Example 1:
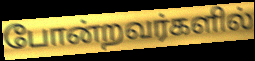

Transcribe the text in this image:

போன்றவர்களில்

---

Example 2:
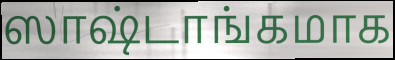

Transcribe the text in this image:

ஸாஷ்டாங்கமாக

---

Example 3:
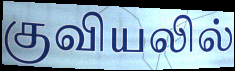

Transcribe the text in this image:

குவியலில்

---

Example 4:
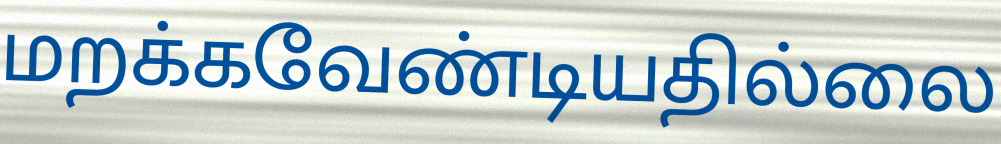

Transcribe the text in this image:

மறக்கவேண்டியதில்லை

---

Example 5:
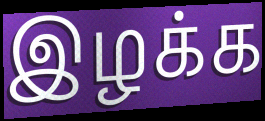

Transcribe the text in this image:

இழக்க